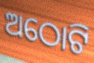
ଅଠୋଟି